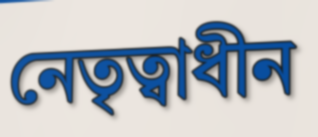
নেতৃত্বাধীন